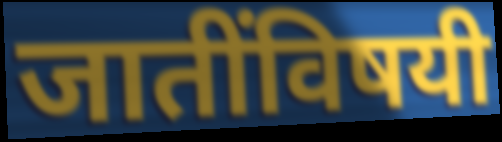
जातींविषयी